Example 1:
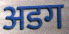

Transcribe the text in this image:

अडग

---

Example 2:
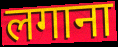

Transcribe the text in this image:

लगाना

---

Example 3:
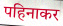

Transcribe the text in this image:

पहिनाकर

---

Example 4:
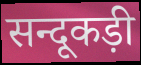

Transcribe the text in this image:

सन्दूकड़ी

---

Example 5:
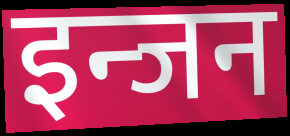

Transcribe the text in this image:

इन्जन